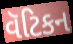
વૅટિકન